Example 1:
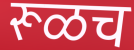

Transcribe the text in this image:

रूळच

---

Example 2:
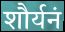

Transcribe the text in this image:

शौर्यनं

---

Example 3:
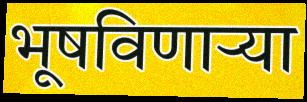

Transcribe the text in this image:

भूषविणाऱ्या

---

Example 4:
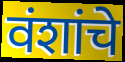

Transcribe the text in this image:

वंशांचे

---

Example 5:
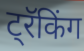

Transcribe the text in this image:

ट्रॅकिंग